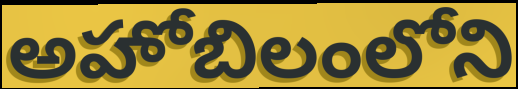
అహోబిలంలోని